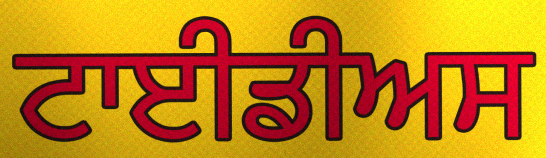
ਟਾਈਡੀਅਸ